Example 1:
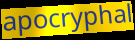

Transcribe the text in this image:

apocryphal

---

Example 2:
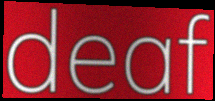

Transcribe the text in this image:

deaf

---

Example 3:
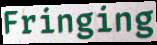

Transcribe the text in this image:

Fringing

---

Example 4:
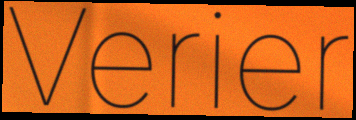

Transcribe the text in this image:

Verier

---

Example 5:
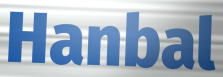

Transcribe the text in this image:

Hanbal